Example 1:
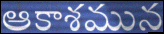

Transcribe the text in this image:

ఆకాశమున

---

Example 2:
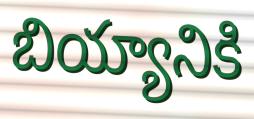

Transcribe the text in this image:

బియ్యానికి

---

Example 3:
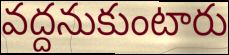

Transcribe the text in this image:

వద్దనుకుంటారు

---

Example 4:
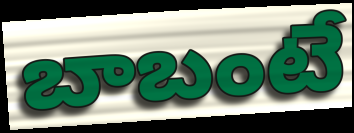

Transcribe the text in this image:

బాబంటే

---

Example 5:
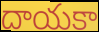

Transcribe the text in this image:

దాయకా